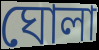
ঘোলা